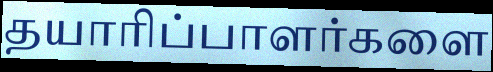
தயாரிப்பாளர்களை